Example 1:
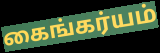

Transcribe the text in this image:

கைங்கர்யம்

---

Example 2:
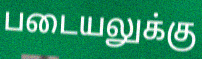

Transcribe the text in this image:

படையலுக்கு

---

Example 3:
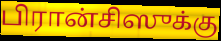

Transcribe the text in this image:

பிரான்சிஸுக்கு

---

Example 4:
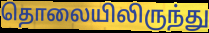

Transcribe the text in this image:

தொலையிலிருந்து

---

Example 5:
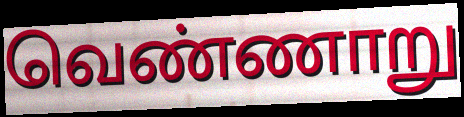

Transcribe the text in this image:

வெண்ணாறு